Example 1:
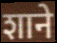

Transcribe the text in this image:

शाने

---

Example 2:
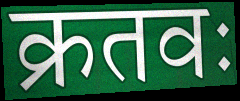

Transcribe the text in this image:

क्रतवः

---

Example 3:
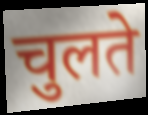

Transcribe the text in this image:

चुलते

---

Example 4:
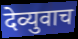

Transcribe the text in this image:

देव्युवाच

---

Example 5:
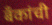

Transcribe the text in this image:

बँकांची